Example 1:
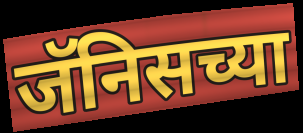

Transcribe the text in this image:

जॅनिसच्या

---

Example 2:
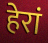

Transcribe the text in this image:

हेरां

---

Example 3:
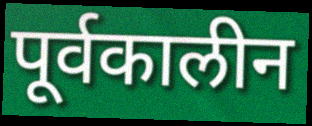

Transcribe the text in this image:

पूर्वकालीन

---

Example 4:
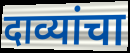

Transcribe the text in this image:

दाव्यांचा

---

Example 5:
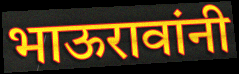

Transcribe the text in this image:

भाऊरावांनी